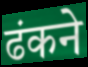
ढंकने